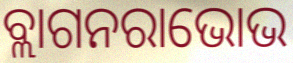
ବ୍ଲାଗନରାଭୋଭ